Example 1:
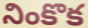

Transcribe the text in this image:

నింకొక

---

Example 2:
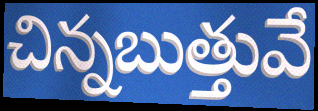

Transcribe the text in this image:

చిన్నబుత్తువే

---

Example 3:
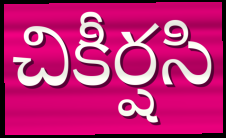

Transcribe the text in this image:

చికీర్షసి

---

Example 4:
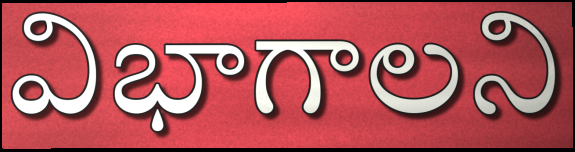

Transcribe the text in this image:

విభాగాలని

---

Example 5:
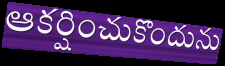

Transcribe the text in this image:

ఆకర్షించుకొందును